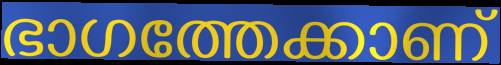
ഭാഗത്തേക്കാണ്